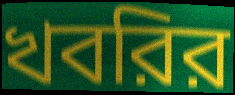
খবরির